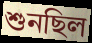
শুনছিল